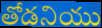
తోడనియు